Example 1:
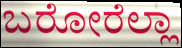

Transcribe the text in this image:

ಬರೋರೆಲ್ಲಾ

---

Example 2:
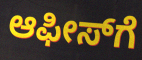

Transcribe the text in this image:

ಆಫೀಸ್‍ಗೆ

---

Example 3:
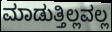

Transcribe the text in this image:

ಮಾಡುತ್ತಿಲ್ಲವಲ್ಲ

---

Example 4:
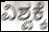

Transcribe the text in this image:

ವಿಶ್ವಕ್ಕೆ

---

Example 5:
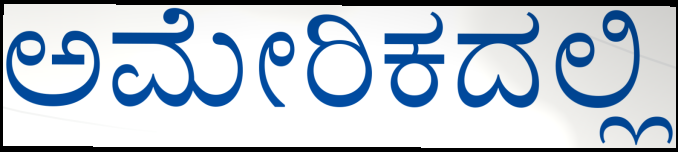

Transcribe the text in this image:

ಅಮೇರಿಕದಲ್ಲಿ